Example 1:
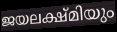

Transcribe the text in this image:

ജയലക്ഷ്മിയും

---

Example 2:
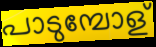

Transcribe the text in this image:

പാടുമ്പോള്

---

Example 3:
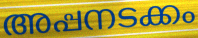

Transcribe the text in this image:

അപ്പനടക്കം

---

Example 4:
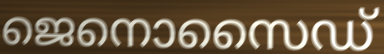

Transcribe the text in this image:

ജെനൊസൈഡ്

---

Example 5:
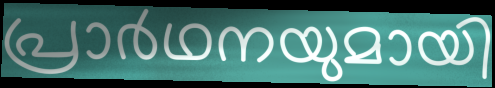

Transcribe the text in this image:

പ്രാർഥനയുമായി